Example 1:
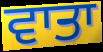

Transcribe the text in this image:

ਵਾਤਾ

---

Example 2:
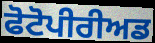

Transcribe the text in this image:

ਫੋਟੋਪੀਰੀਅਡ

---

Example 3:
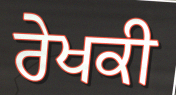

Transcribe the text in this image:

ਰੇਖਕੀ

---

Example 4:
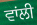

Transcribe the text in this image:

ਵਾਂਲੀ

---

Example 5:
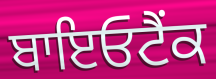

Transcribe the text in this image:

ਬਾਇਓਟੈਂਕ